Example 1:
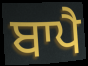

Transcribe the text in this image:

ਬਾਪੈ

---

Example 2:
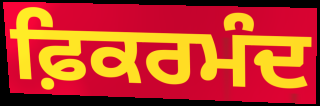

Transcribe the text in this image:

ਫ਼ਿਕਰਮੰਦ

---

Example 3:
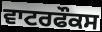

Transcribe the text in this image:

ਵਾਟਰਫੌਕਸ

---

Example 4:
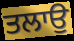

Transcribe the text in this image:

ਤਲਾਉ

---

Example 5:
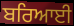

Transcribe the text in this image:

ਬਰਿਆਈ